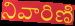
నివారిణి